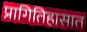
प्रागितिहासात